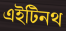
এইটিনথ